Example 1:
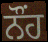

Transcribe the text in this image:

ਨੌੰਹ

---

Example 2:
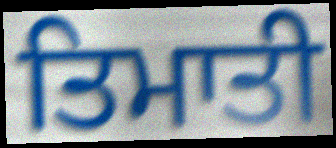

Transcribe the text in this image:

ਤਿਮਾਤੀ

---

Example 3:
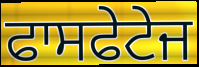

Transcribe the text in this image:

ਫਾਸਫੇਟੇਜ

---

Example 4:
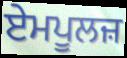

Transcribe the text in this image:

ਏਮਪੂਲਜ਼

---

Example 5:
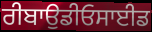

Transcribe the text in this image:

ਰੀਬਾਉਡੀਓਸਾਈਡ